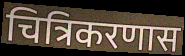
चित्रिकरणास